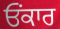
ਓਂਕਾਰ